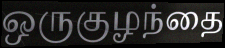
ஒருகுழந்தை